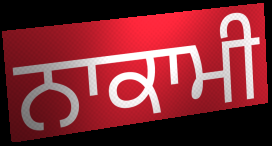
ਨਾਕਾਮੀ